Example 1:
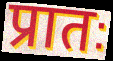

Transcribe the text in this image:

प्रातः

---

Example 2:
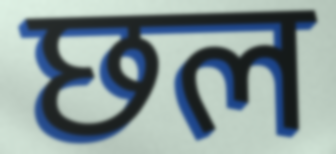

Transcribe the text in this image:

छल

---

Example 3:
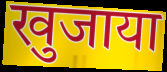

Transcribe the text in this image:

खुजाया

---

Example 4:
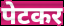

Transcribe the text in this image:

पेटकर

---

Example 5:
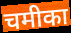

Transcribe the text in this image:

चमीका